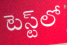
టెస్ట్‌లో